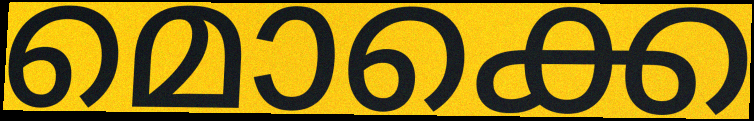
മൊക്കെ